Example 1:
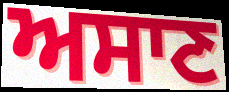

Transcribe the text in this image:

ਅਸਾਣ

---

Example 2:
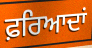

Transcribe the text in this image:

ਫ਼ਰਿਆਦਾਂ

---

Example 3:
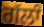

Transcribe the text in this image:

ਗੱਲਾੰ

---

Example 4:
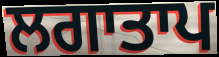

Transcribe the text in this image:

ਲਗਾਤਾਪ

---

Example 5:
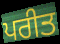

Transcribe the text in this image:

ਪਰੀਤ